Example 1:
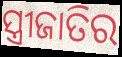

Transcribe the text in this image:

ସ୍ତ୍ରୀଜାତିର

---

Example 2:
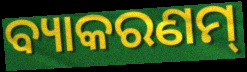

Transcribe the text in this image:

ବ୍ୟାକରଣମ୍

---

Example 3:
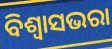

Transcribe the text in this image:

ବିଶ୍ୱାସଭରା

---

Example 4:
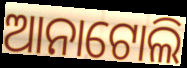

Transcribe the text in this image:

ଆନାଟୋଲି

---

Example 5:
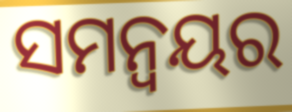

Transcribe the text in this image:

ସମନ୍ଵୟର